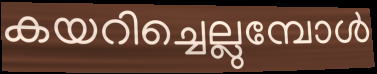
കയറിച്ചെല്ലുമ്പോൾ